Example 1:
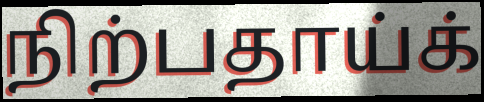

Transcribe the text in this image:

நிற்பதாய்க்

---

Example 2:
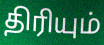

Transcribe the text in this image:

திரியும்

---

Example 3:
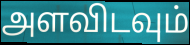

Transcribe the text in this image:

அளவிடவும்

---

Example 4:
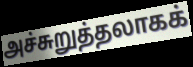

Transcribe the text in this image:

அச்சுறுத்தலாகக்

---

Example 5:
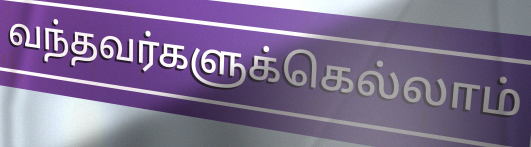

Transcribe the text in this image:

வந்தவர்களுக்கெல்லாம்